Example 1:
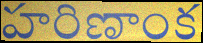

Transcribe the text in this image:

హరిణాంక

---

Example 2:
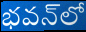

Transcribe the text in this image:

భవన్‌లో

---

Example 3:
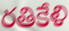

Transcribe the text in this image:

రతికేళి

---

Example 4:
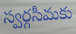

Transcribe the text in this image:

స్వర్గసీమకు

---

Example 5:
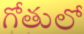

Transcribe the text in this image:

గోతులో